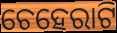
ଚେହେରାଟି